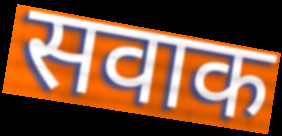
सवाक